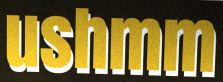
ushmm